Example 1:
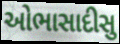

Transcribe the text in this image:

ઓભાસાદીસુ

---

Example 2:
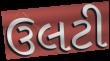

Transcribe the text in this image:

ઉલટી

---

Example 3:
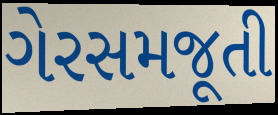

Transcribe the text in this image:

ગેરસમજૂતી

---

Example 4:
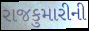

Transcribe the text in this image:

રાજકુમારીની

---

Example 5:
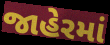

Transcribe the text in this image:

જાહેરમાં